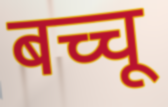
बच्चू